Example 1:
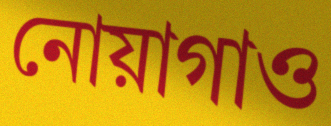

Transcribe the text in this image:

নোয়াগাও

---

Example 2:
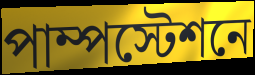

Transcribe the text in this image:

পাম্পস্টেশনে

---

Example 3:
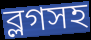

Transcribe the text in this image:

ব্লগসহ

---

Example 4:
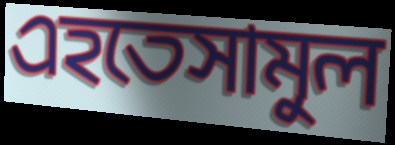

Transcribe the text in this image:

এহতেসামুল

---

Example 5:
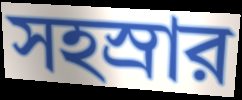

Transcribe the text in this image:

সহস্রার